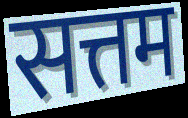
सत्तम